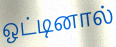
ஒட்டினால்